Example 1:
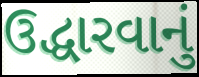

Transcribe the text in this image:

ઉદ્ધારવાનું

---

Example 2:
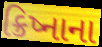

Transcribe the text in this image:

ક્રિષ્નાના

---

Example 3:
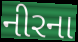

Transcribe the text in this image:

નીરના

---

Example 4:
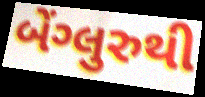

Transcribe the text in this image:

બેંગ્લુરુથી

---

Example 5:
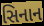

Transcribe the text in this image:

સિનાન